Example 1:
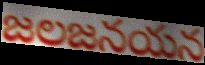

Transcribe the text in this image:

జలజనయన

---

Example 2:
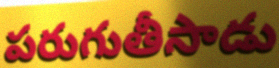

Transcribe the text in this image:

పరుగుతీసాడు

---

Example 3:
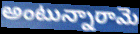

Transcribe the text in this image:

అంటున్నారామె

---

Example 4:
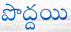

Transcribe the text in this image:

పొద్దయి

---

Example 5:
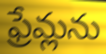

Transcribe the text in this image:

ఫ్రేమ్లను